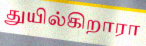
துயில்கிறாரா